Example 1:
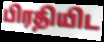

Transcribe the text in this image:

பிரதியிட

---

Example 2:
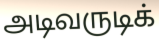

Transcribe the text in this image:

அடிவருடிக்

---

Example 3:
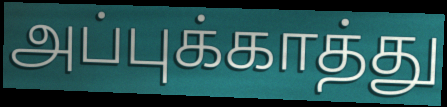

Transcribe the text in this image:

அப்புக்காத்து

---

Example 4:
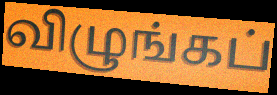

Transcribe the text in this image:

விழுங்கப்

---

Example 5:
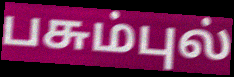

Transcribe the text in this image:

பசும்புல்